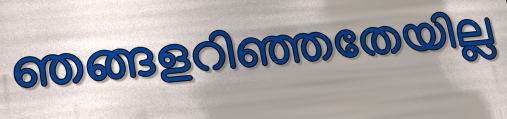
ഞങ്ങളറിഞ്ഞതേയില്ല